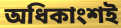
অধিকাংশই